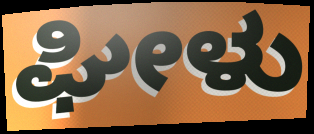
ಘೀಳು